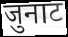
जुनाट